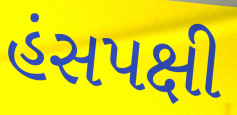
હંસપક્ષી